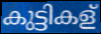
കുട്ടികള്